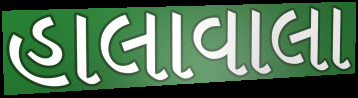
હાલાવાલા